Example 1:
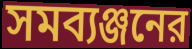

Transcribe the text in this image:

সমব্যঞ্জনের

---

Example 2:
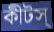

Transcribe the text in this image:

কীটস্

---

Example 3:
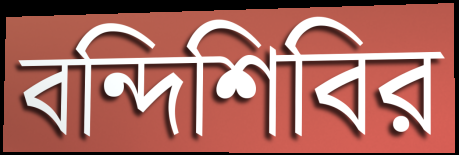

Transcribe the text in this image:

বন্দিশিবির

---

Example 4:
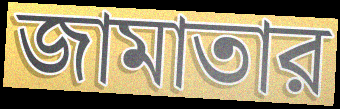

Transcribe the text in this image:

জামাতার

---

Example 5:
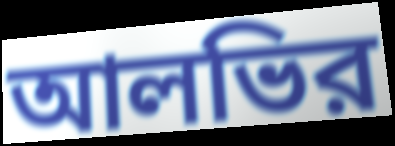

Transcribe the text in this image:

আলভির